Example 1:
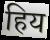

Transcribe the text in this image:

हिय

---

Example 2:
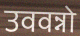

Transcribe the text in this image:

उववन्नो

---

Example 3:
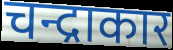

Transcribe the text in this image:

चन्द्राकार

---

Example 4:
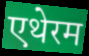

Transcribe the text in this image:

एथेरम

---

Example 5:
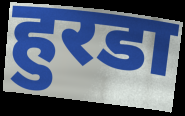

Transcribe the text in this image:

हुरडा